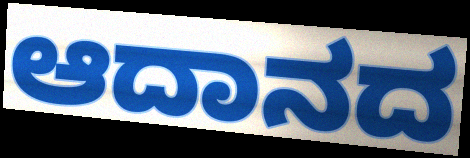
ಆದಾನದ